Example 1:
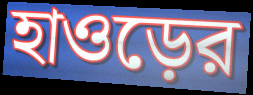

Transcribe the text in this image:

হাওড়ের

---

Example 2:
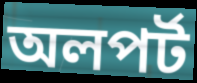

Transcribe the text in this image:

অলপর্ট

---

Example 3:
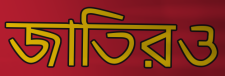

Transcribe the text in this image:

জাতিরও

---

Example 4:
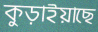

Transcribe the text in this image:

কুড়াইয়াছে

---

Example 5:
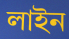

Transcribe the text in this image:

লাইন